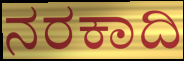
ನರಕಾದಿ